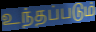
உந்தப்படும்